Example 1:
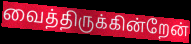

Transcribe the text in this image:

வைத்திருக்கின்றேன்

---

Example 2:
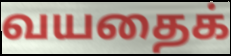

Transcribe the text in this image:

வயதைக்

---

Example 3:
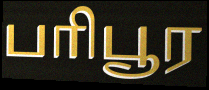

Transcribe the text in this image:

பரிபூர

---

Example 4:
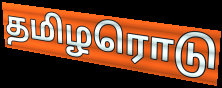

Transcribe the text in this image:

தமிழரொடு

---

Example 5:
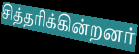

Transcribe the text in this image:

சித்தரிக்கின்றனர்